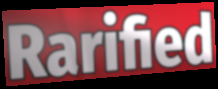
Rarified